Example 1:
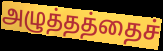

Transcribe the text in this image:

அழுத்தத்தைச்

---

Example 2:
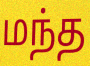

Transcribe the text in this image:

மந்த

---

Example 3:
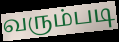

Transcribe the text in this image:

வரும்படி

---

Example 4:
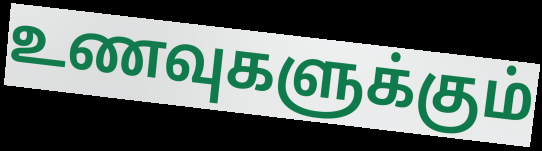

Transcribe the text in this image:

உணவுகளுக்கும்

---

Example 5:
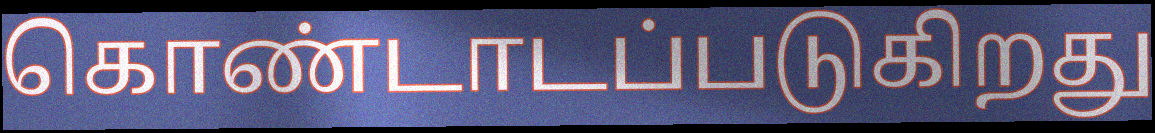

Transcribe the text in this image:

கொண்டாடப்படுகிறது